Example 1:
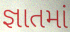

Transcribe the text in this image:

જ્ઞાતમાં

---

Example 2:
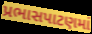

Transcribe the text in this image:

પ્રભાસપાટણમાં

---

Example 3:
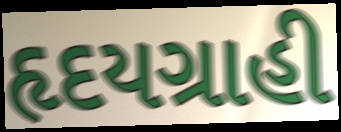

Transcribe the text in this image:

હૃદયગ્રાહી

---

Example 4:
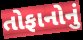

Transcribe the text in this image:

તોફાનોનું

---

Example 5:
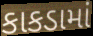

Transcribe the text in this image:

કાકડામાં